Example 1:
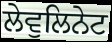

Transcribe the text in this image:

ਲੇਵੁਲਿਨੇਟ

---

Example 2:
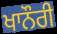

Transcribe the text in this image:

ਖਾਨੌਰੀ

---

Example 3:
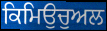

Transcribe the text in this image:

ਕਿਮਿਉਚੁਅਲ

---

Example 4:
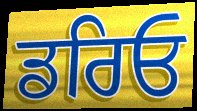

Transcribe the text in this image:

ਡਰਿਓ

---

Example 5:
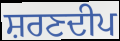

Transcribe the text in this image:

ਸ਼ਰਣਦੀਪ